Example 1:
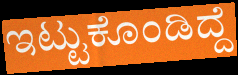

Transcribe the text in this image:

ಇಟ್ಟುಕೊಂಡಿದ್ದೆ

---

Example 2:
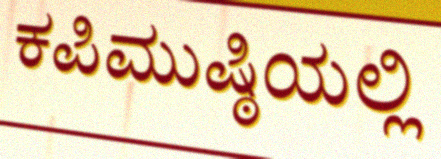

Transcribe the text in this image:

ಕಪಿಮುಷ್ಠಿಯಲ್ಲಿ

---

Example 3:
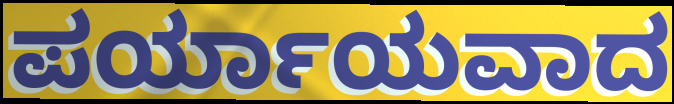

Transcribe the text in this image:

ಪರ್ಯಾಯವಾದ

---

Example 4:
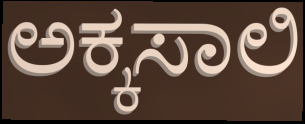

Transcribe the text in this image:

ಅಕ್ಕಸಾಲಿ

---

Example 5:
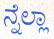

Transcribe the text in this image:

ನ್ನೆಲ್ಲಾ